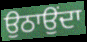
ਉਠਾਉਂਦਾ